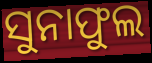
ସୁନାଫୁଲ